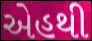
એહથી